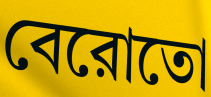
বেরোতো